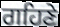
ਗਹਿਣੇ